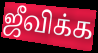
ஜீவிக்க